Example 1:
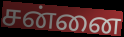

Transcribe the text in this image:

சன்னை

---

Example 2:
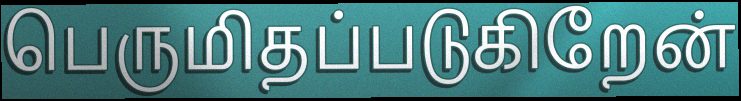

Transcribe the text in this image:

பெருமிதப்படுகிறேன்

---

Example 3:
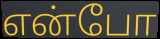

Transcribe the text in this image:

என்போ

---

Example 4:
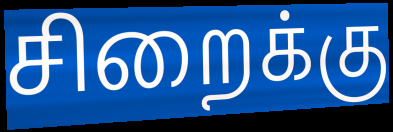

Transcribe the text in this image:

சிறைக்கு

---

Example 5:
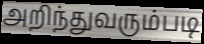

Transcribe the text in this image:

அறிந்துவரும்படி